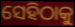
ସେହିଠାକୁ